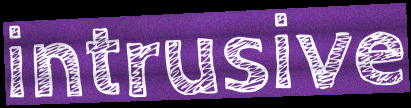
intrusive